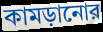
কামড়ানোর